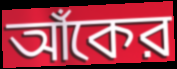
আঁকের